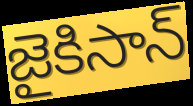
జైకిసాన్